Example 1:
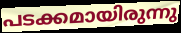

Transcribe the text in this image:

പടക്കമായിരുന്നു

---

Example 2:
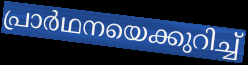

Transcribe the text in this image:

പ്രാർഥനയെക്കുറിച്ച്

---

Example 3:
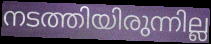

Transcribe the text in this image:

നടത്തിയിരുന്നില്ല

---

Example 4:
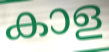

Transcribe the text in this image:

കാള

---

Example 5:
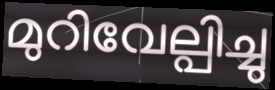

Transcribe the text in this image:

മുറിവേല്പിച്ചു